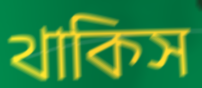
থাকিস